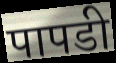
पापडी